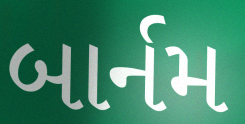
બાર્નમ